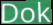
Dok